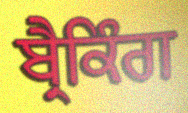
ਬ੍ਰੈਕਿੰਗ